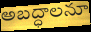
అబద్ధాలనూ